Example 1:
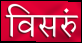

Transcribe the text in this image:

विसरुं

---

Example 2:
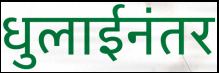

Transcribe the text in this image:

धुलाईनंतर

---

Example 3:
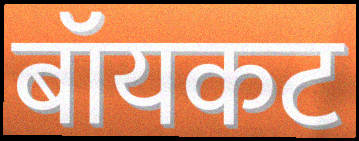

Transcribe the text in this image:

बॉयकट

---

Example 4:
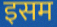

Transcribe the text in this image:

इसम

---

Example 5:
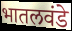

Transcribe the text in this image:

भातलवंडे